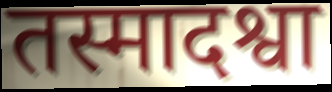
तस्मादश्वा